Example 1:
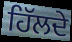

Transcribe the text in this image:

ਹਿੱਲਦੇ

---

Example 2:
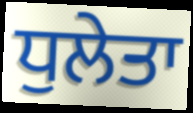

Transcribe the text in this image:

ਧੁਲੇਤਾ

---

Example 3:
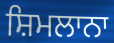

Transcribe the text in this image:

ਸ਼ਿਮਲਾਨਾ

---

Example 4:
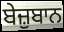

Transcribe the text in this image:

ਬੇਜ਼ੁਬਾਨ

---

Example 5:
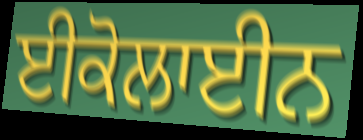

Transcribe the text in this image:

ਈਕੋਲਾਈਨ